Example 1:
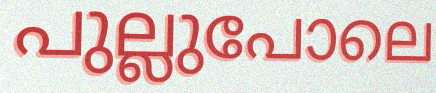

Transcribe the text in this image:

പുല്ലുപോലെ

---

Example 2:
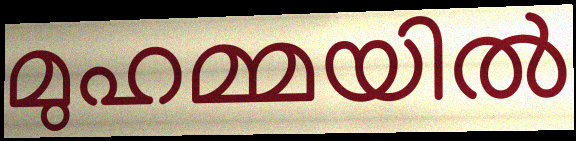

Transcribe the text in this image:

മുഹമ്മയിൽ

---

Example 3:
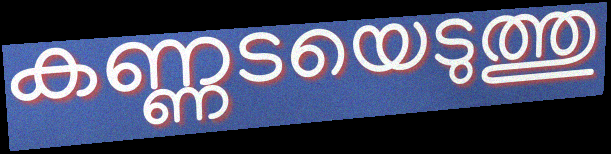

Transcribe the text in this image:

കണ്ണടയെടുത്തു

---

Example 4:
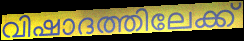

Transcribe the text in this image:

വിഷാദത്തിലേക്ക്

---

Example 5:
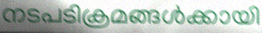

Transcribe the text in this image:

നടപടിക്രമങ്ങൾക്കായി